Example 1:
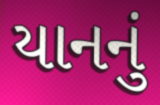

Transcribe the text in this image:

યાનનું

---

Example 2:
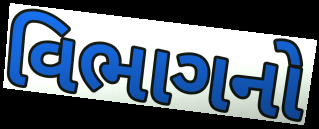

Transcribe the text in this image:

વિભાગનો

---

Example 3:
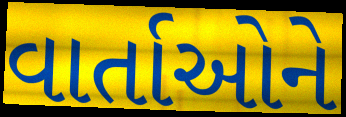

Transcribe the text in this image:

વાર્તાઓને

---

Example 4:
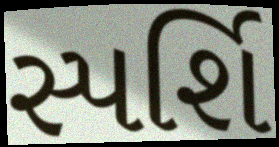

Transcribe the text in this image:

સ્પર્શિ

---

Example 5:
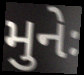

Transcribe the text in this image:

મુનેઃ